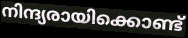
നിന്ദ്യരായിക്കൊണ്ട്